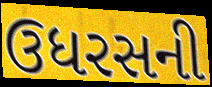
ઉધરસની